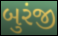
બુરંજી